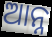
ଆନ୍ନ